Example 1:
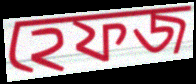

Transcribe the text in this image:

হেফজ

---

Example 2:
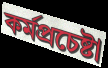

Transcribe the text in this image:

কর্মপ্রচেষ্টা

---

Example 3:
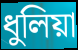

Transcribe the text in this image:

ধুলিয়া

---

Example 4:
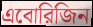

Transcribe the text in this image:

এবোরিজিন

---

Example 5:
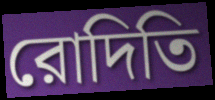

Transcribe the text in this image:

রোদিতি